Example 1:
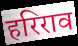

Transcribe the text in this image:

हरिराव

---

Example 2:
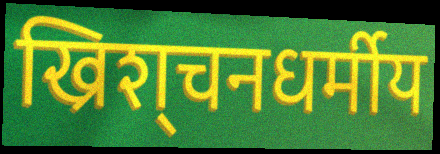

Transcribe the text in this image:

ख्रिश्चनधर्मीय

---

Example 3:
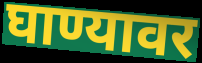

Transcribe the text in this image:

घाण्यावर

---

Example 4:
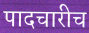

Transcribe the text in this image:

पादचारीच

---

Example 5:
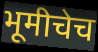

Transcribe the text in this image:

भूमीचेच